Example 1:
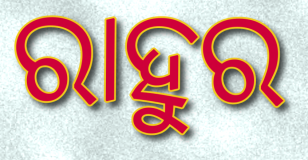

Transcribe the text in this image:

ରାହୁର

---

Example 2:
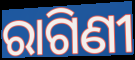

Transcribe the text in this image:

ରାଗିଣୀ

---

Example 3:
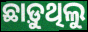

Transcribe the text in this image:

ଛାଡ଼ୁଥିଲୁ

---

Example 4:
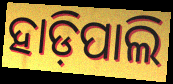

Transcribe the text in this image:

ହାଡ଼ିପାଲି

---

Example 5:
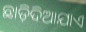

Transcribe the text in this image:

ଛାଡ଼ିଦିଆଯାଏ